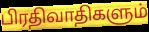
பிரதிவாதிகளும்